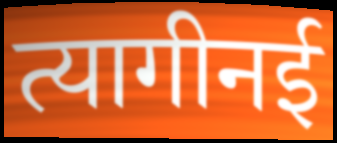
त्यागीनई